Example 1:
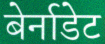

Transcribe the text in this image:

बेर्नाडेट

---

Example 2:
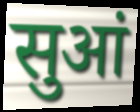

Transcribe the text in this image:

सुआं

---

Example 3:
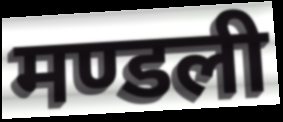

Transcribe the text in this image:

मण्डली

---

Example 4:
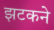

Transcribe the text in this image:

झटकने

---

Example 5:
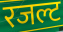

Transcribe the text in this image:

रजल्ट